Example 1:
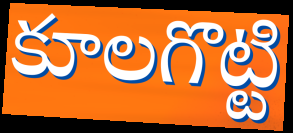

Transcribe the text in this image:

కూలగొట్టి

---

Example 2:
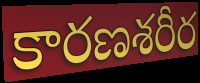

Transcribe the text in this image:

కారణశరీర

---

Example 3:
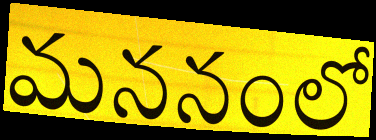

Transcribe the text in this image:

మననంలో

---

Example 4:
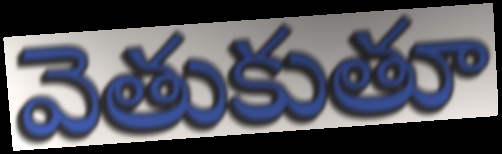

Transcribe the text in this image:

వెతుకుతూ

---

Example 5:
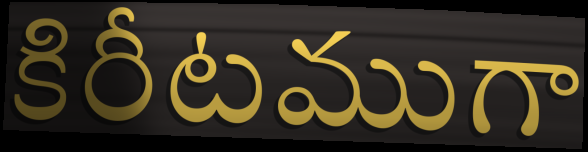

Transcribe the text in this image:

కిరీటముగా